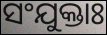
ସଂଯୁକ୍ତାଃ